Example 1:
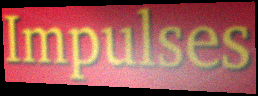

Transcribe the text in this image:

Impulses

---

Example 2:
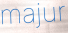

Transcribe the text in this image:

majur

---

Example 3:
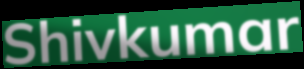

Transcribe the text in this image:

Shivkumar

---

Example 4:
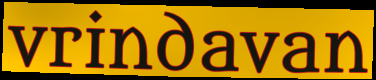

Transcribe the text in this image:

vrindavan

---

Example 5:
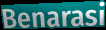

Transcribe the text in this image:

Benarasi